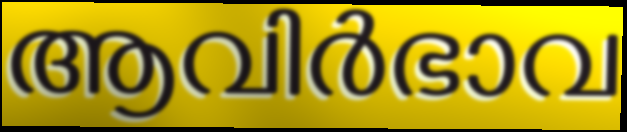
ആവിർഭാവ